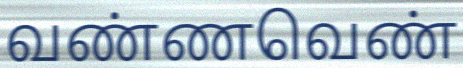
வண்ணவெண்